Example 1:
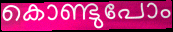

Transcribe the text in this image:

കൊണ്ടുപോം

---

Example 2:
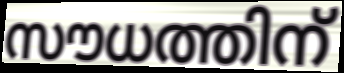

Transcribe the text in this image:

സൗധത്തിന്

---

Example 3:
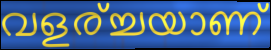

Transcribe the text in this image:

വളര്ച്ചയാണ്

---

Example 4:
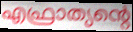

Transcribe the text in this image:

എഫ്രാത്യന്റെ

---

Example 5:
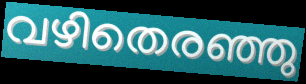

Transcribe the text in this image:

വഴിതെരഞ്ഞു